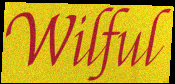
Wilful